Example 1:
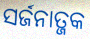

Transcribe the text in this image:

ସର୍ଜନାତ୍ଜକ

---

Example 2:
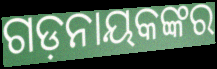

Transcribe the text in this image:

ଗଡ଼ନାୟକଙ୍କର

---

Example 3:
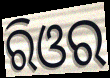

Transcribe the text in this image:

ରିଓର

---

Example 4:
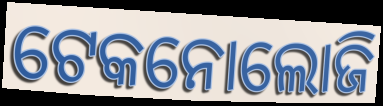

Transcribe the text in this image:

ଟେକନୋଲୋଜି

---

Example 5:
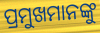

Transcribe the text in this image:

ପ୍ରମୁଖମାନଙ୍କୁ